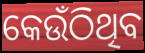
କେଉଁଠିଥିବ